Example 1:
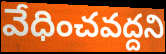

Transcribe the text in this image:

వేధించవద్దని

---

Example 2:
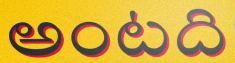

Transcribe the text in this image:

అంటది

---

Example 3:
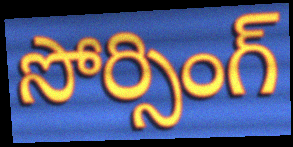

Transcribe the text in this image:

సోర్సింగ్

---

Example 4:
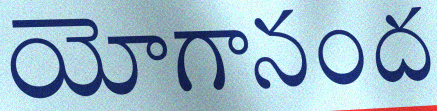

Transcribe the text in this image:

యోగానంద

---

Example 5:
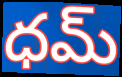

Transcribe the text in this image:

ధమ్